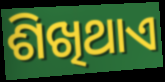
ଶିଖିଥାଏ